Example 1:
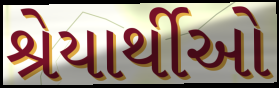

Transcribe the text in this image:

શ્રેયાર્થીઓ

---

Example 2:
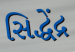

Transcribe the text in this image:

સિદ્ધેંદ્ર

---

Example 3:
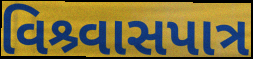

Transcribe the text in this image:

વિશ્ર્વાસપાત્ર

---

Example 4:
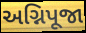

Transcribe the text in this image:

અગ્નિપૂજા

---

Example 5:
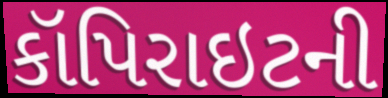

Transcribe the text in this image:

કૉપિરાઇટની